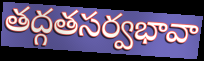
తద్గతసర్వభావా